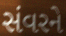
સંવરને